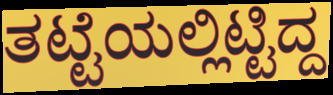
ತಟ್ಟೆಯಲ್ಲಿಟ್ಟಿದ್ದ